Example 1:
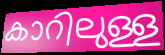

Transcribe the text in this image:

കാറിലുള്ള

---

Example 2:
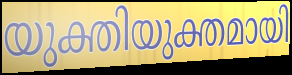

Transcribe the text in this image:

യുക്തിയുക്തമായി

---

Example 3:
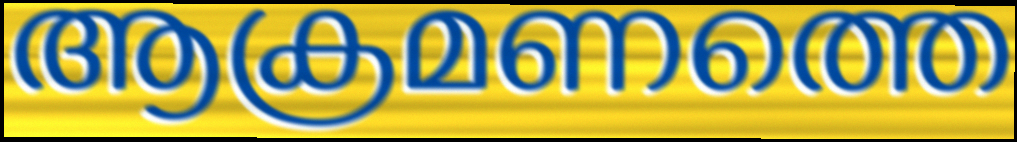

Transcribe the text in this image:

ആക്രമണത്തെ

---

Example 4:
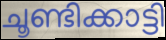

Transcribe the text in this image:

ചൂണ്ടിക്കാട്ടി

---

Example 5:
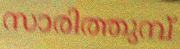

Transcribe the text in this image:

സാരിത്തുമ്പ്